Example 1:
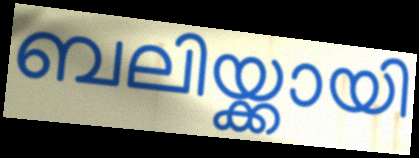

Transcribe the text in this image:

ബലിയ്ക്കായി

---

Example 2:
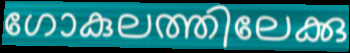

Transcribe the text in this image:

ഗോകുലത്തിലേക്കു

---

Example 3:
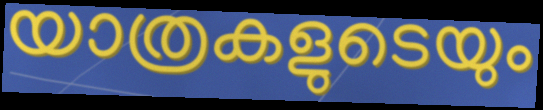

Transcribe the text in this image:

യാത്രകളുടെയും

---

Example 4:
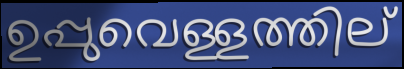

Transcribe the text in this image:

ഉപ്പുവെള്ളത്തില്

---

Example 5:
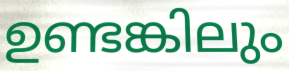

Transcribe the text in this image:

ഉണ്ടങ്കിലും